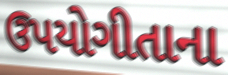
ઉપયોગીતાના